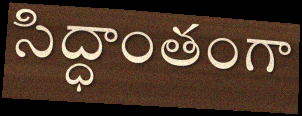
సిద్ధాంతంగా